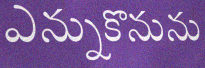
ఎన్నుకొనును